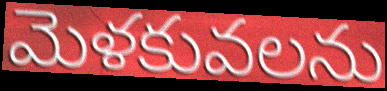
మెళకువలను